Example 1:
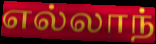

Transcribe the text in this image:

எல்லாந்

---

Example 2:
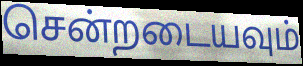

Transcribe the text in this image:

சென்றடையவும்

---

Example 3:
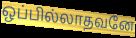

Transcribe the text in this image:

ஒப்பில்லாதவனே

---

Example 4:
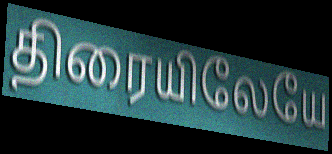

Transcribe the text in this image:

திரையிலேயே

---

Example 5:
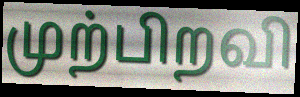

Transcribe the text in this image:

முற்பிறவி